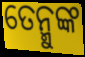
ତେନ୍ମୁଙ୍କ